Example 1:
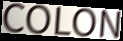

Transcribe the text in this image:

COLON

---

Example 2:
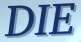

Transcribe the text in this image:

DIE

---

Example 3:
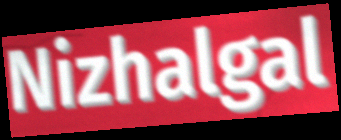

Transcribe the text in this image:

Nizhalgal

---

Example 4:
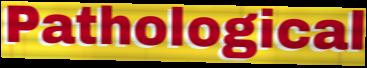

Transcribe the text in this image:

Pathological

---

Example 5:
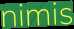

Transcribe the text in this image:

nimis